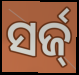
ସର୍ଜ୍